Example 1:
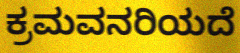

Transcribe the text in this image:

ಕ್ರಮವನರಿಯದೆ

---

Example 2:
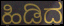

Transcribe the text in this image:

ಹಿಡಿದ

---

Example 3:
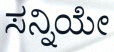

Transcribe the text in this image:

ಸನ್ನಿಯೇ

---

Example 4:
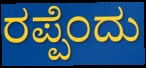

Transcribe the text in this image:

ರಪ್ಪೆಂದು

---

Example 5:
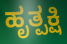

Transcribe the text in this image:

ಹೃತ್ಪಕ್ಷಿ